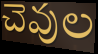
చెవుల